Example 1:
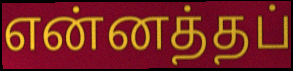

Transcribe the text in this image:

என்னத்தப்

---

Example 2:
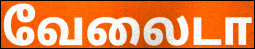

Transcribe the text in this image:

வேலைடா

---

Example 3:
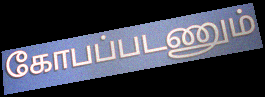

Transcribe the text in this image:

கோபப்படணும்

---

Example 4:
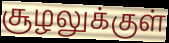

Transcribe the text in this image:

சூழலுக்குள்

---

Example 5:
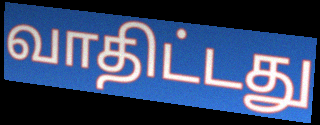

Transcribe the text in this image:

வாதிட்டது